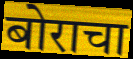
बोराचा